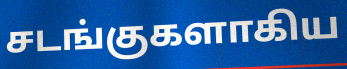
சடங்குகளாகிய